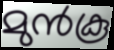
മുൻകൂ